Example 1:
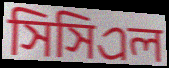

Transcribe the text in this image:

সিসিএল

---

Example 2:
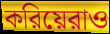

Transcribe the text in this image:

করিয়েরাও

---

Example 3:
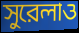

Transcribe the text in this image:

সুরেলাও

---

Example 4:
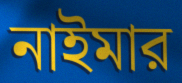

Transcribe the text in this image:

নাইমার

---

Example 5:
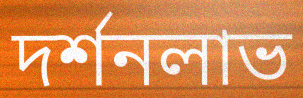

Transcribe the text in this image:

দর্শনলাভ